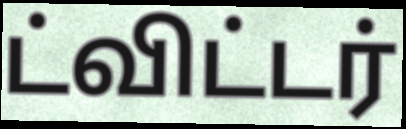
ட்விட்டர்